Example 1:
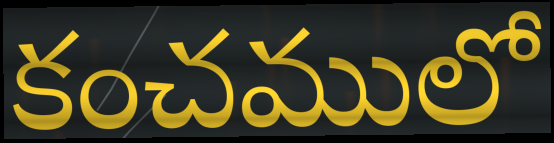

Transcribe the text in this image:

కంచములో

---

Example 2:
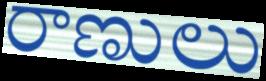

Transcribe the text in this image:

రాణులు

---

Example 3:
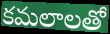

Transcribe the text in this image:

కమలాలతో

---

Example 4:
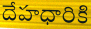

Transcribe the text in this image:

దేహధారికి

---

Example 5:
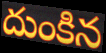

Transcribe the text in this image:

దుంకిన